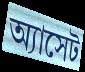
অ্যাসেট